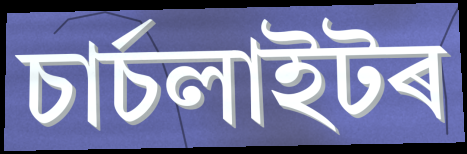
চাৰ্চলাইটৰ